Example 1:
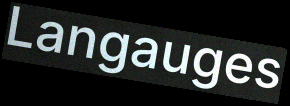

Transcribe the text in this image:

Langauges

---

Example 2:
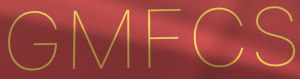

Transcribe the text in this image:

GMFCS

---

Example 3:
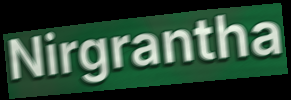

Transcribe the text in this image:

Nirgrantha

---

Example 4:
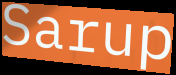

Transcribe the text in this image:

Sarup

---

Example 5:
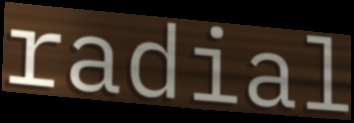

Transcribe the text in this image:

radial